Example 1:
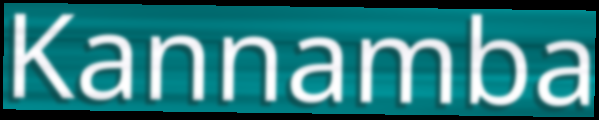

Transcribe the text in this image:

Kannamba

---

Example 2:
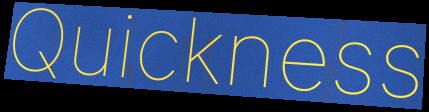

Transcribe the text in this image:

Quickness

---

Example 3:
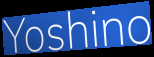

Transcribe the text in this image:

Yoshino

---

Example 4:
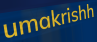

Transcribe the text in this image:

umakrishh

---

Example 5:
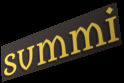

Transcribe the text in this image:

summi